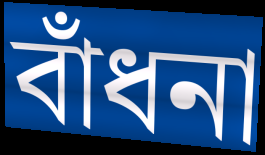
বাঁধনা